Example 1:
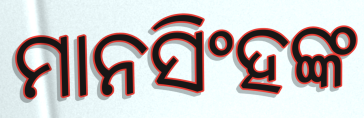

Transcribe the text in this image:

ମାନସିଂହଙ୍କ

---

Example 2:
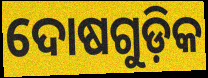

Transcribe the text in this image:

ଦୋଷଗୁଡ଼ିକ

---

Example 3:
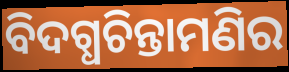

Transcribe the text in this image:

ବିଦଗ୍ଧଚିନ୍ତାମଣିର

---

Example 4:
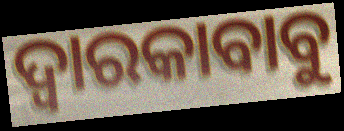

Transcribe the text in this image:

ଦ୍ୱାରକାବାବୁ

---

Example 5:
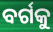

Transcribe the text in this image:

ବର୍ଗକୁ